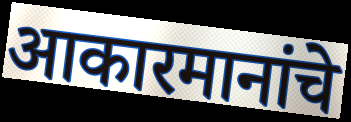
आकारमानांचे